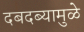
दबदब्यामुळे